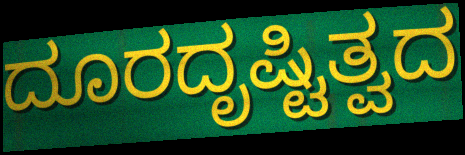
ದೂರದೃಷ್ಟಿತ್ವದ